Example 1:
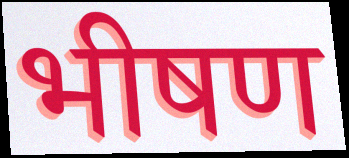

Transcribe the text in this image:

भीषण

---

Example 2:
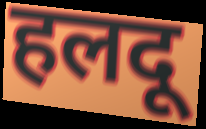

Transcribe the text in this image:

हलदू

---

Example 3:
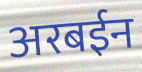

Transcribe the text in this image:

अरबईन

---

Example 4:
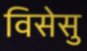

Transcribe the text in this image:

विसेसु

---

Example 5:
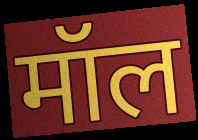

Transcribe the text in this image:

मॉल